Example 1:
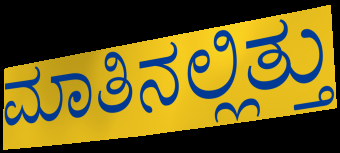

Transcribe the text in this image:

ಮಾತಿನಲ್ಲಿತ್ತು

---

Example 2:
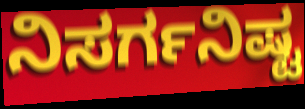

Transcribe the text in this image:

ನಿಸರ್ಗನಿಷ್ಟ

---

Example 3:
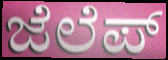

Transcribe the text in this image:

ಜೆಲೆಪ್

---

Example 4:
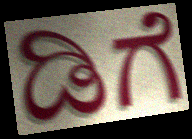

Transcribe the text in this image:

ಡಿಗೆ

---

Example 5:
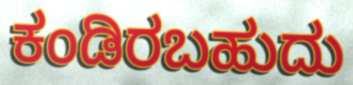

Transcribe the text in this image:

ಕಂಡಿರಬಹುದು